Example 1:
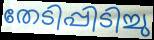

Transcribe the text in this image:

തേടിപ്പിടിച്ചു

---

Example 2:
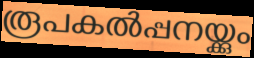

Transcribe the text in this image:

രൂപകൽപ്പനയ്ക്കും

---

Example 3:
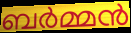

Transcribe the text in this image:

ബർമ്മൻ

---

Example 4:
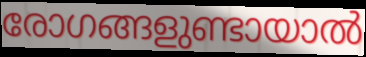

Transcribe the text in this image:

രോഗങ്ങളുണ്ടായാൽ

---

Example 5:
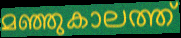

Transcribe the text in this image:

മഞ്ഞുകാലത്ത്